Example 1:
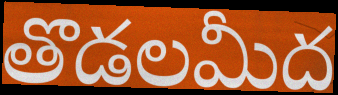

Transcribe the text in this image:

తొడలమీద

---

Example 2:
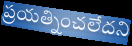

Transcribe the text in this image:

ప్రయత్నించలేదని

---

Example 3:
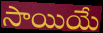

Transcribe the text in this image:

సాయియే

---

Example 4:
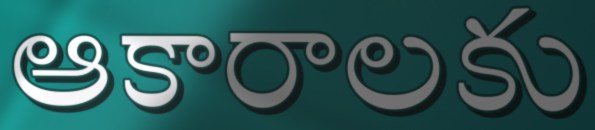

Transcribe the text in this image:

ఆకారాలకు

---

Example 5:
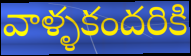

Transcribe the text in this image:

వాళ్ళకందరికి